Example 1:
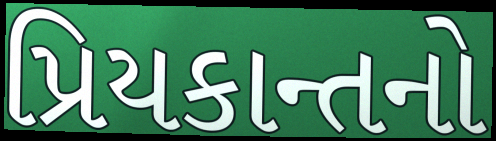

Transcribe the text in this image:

પ્રિયકાન્તનો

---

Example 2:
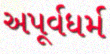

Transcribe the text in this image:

અપૂર્વધર્મ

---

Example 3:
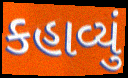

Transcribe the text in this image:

કહાવ્યું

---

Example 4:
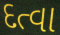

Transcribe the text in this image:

દત્વા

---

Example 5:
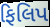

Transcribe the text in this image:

ફિલિપ